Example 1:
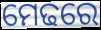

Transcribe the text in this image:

ମେଢରେ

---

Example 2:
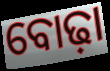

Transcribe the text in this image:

ବୋଢ଼ା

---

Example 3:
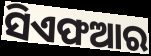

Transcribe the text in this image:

ସିଏଫଆର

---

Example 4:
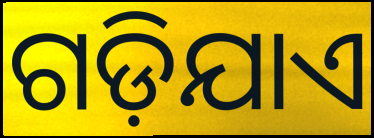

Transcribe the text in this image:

ଗଡ଼ିଯାଏ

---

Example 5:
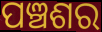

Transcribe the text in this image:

ପଞ୍ଚଶର